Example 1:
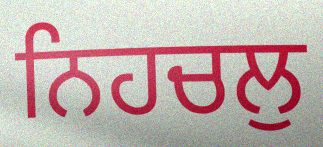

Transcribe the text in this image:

ਨਿਹਚਲੁ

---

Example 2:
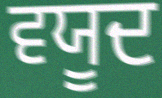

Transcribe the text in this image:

ਵਯੂਦ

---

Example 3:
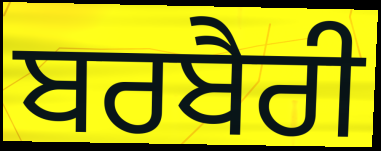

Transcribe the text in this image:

ਬਰਬੈਰੀ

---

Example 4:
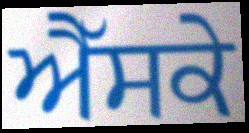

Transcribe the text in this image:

ਐੱਸਕੇ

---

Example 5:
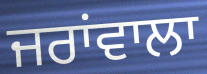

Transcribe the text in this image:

ਜਰਾਂਵਾਲਾ